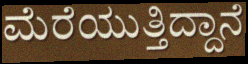
ಮೆರೆಯುತ್ತಿದ್ದಾನೆ